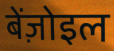
बेंज़ोइल